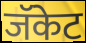
जॅकेट